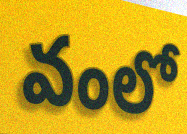
వంలో